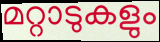
മറ്റാടുകളും